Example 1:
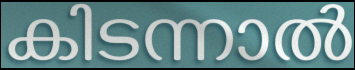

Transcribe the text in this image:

കിടന്നാൽ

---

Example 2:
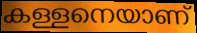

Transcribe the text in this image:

കള്ളനെയാണ്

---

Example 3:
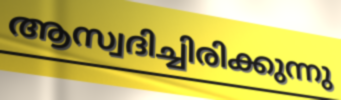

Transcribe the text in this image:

ആസ്വദിച്ചിരിക്കുന്നു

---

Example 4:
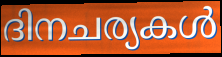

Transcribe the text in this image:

ദിനചര്യകൾ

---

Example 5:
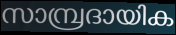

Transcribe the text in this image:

സാമ്പ്രദായിക